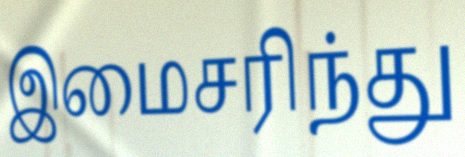
இமைசரிந்து